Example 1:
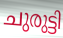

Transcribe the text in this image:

ചുരുട്ടി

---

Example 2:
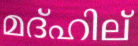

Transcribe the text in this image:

മദ്ഹില്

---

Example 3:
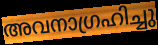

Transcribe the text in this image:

അവനാഗ്രഹിച്ചു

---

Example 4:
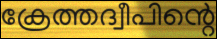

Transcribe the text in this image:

ക്രേത്തദ്വീപിന്റെ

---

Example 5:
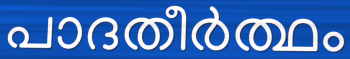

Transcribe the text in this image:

പാദതീർത്ഥം